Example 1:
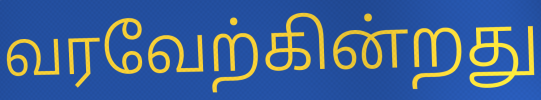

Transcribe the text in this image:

வரவேற்கின்றது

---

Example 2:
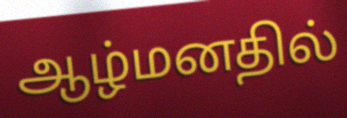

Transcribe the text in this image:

ஆழ்மனதில்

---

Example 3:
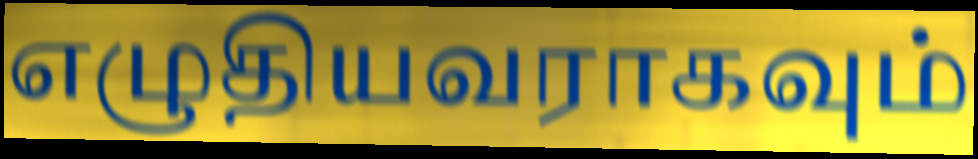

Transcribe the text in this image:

எழுதியவராகவும்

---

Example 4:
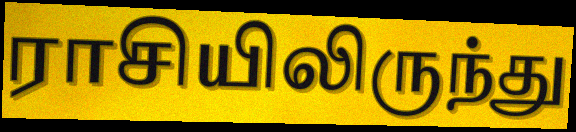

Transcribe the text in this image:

ராசியிலிருந்து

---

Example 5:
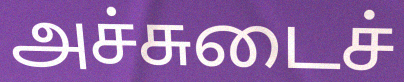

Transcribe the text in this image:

அச்சுடைச்